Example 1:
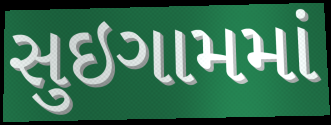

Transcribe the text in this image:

સુઇગામમાં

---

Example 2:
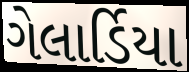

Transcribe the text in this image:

ગેલાર્ડિયા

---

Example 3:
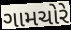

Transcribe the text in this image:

ગામચોરે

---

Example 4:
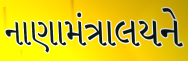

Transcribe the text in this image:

નાણામંત્રાલયને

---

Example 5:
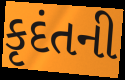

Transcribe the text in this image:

કૃદંતની